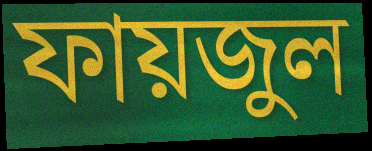
ফায়জুল